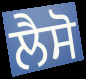
ਲੈਸੋ